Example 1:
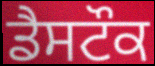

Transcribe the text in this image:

ਡੈਸਟੌਕ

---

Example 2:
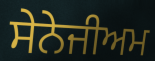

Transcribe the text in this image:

ਸੇਨੇਜੀਅਮ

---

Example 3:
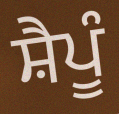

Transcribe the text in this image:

ਸ਼ੈਪੂੰ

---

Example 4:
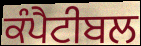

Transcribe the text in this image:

ਕੰਪੈਟੀਬਲ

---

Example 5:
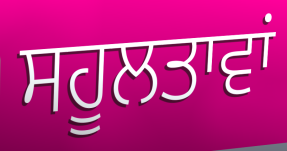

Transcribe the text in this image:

ਸਹੂਲਤਾਵਾਂ